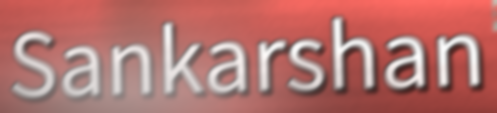
Sankarshan